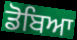
ਡੋਬਿਆ